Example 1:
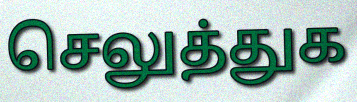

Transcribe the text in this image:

செலுத்துக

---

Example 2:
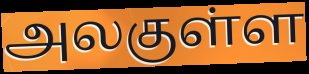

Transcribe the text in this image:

அலகுள்ள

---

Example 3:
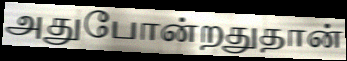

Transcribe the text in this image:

அதுபோன்றதுதான்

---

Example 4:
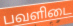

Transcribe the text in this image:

பவளிடை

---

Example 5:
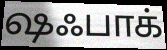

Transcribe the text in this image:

ஷஃபாக்